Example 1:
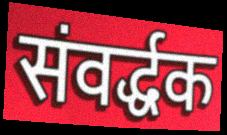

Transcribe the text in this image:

संवर्द्धक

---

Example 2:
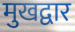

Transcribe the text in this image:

मुखद्वार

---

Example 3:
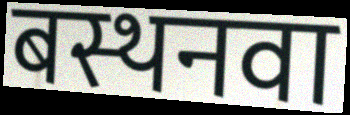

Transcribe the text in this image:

बस्थनवा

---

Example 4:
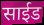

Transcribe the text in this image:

साईड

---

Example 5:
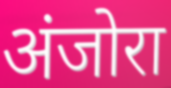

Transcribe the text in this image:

अंजोरा